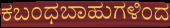
ಕಬಂಧಬಾಹುಗಳಿಂದ